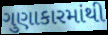
ગુણાકારમાંથી